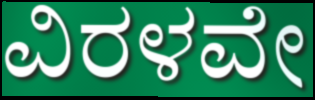
ವಿರಳವೇ